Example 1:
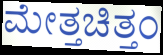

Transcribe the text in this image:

ಮೇತ್ತಚಿತ್ತಂ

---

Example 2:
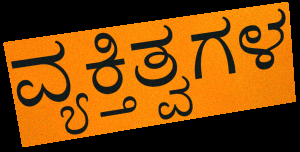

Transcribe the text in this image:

ವ್ಯಕ್ತಿತ್ವಗಳ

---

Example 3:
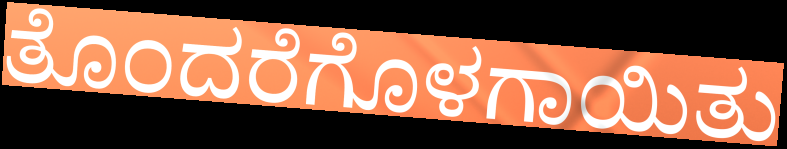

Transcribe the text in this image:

ತೊಂದರೆಗೊಳಗಾಯಿತು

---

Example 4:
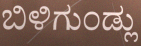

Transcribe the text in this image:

ಬಿಳಿಗುಂಡ್ಲು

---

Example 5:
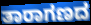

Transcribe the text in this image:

ತಾರಾಗಣದ